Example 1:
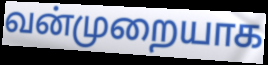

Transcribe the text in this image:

வன்முறையாக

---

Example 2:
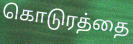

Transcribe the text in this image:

கொடுரத்தை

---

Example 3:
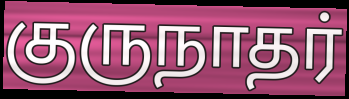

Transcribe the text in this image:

குருநாதர்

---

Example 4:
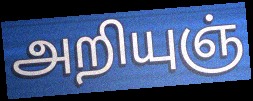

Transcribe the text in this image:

அறியுஞ்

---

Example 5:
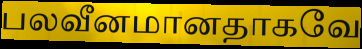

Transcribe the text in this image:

பலவீனமானதாகவே